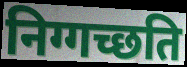
निग्गच्छति